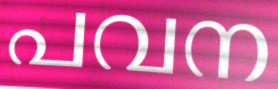
പവന